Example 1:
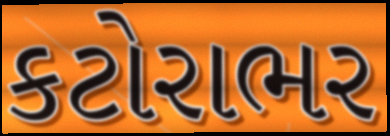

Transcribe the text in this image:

કટોરાભર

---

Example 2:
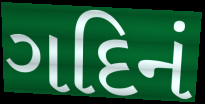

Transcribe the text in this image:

ગદિનં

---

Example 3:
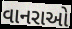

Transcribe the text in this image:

વાનરાઓ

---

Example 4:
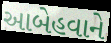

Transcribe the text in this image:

આબેહવાને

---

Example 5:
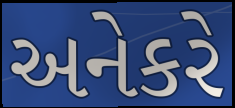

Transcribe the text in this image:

અનેકરે